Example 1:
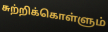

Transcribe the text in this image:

சுற்றிக்கொள்ளும்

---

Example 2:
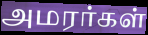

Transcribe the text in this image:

அமரர்கள்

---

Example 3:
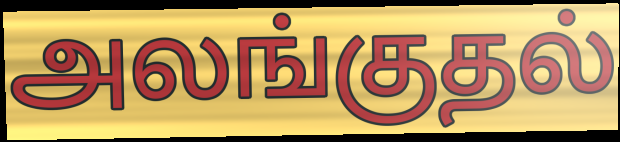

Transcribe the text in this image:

அலங்குதல்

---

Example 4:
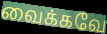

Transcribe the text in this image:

வைக்கவே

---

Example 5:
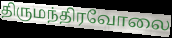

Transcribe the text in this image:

திருமந்திரவோலை